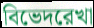
বিভেদরেখা